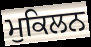
ਮੁਕਿਲਨ